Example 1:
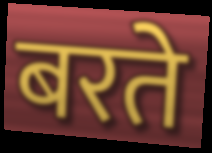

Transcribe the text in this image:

बरते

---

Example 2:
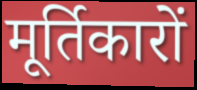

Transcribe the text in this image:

मूर्तिकारों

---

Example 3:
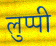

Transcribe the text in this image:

लुप्पी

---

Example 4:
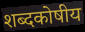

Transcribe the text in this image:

शब्दकोषीय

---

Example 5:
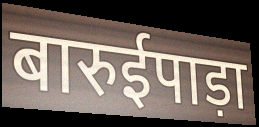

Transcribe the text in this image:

बारुईपाड़ा